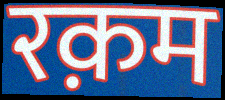
रक़म